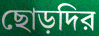
ছোড়দির